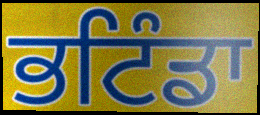
ਭਟਿੰਡਾ